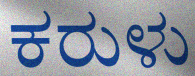
ಕರುಳು